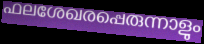
ഫലശേഖരപ്പെരുന്നാളും